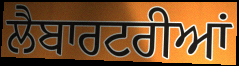
ਲੈਬਾਰਟਰੀਆਂ